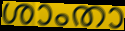
ശാംതാ